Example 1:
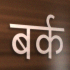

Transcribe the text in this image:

बर्क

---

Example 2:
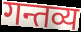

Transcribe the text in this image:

गन्तव्य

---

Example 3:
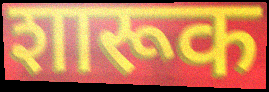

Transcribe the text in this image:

शारूक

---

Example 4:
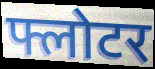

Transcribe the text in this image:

फ्लोटर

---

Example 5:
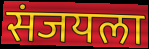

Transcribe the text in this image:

संजयला